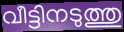
വീട്ടിനടുത്തു